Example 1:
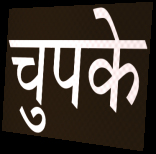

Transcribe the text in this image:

चुपके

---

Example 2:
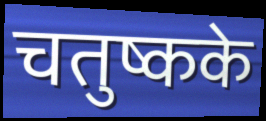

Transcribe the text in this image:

चतुष्कके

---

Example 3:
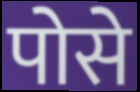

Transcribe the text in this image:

पोसे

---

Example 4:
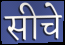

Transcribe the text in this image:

सीचे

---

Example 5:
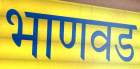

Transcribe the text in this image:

भाणवड